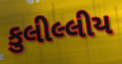
કુલીલ્લીય